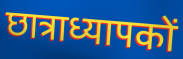
छात्राध्यापकों